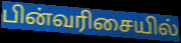
பின்வரிசையில்